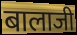
बालाजी